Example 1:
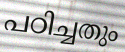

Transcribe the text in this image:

പഠിച്ചതും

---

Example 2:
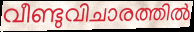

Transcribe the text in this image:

വീണ്ടുവിചാരത്തിൽ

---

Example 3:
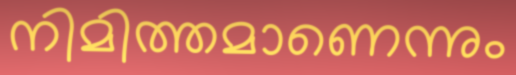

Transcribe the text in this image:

നിമിത്തമാണെന്നും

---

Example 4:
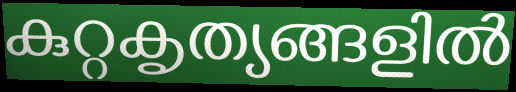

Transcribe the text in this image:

കുറ്റകൃത്യങ്ങളിൽ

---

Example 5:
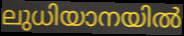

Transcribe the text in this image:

ലുധിയാനയിൽ